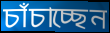
চাঁচাচ্ছেন